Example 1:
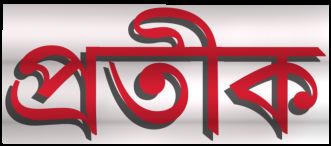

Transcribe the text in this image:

প্ৰতীক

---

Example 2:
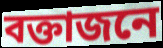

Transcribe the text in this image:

বক্তাজনে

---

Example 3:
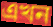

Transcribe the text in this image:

এখন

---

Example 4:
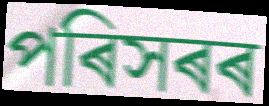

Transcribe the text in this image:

পৰিসৰৰ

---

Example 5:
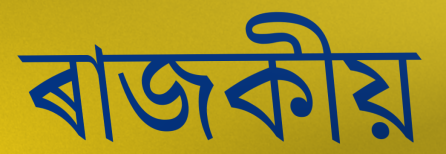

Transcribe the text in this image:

ৰাজকীয়